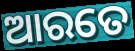
ଆରତେ